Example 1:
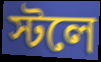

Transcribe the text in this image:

স্টলে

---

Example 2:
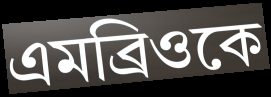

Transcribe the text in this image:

এমব্রিওকে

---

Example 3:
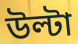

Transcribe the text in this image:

উল্টা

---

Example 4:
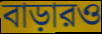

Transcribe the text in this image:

বাড়ারও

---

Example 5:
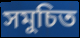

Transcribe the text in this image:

সমুচিত